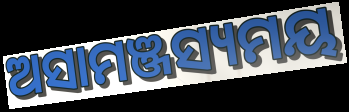
ଅସାମଞ୍ଜସ୍ୟମୟ